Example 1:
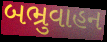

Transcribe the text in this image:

બભ્રુવાહન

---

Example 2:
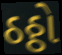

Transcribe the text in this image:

ઠઠ્ઠો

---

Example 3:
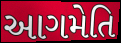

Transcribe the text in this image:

આગમેતિ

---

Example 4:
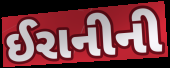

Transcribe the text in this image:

ઈરાનીની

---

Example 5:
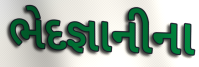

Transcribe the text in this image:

ભેદજ્ઞાનીના